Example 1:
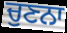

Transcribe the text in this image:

ਚੁਣਨਾ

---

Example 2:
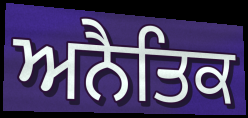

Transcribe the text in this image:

ਅਨੈਤਿਕ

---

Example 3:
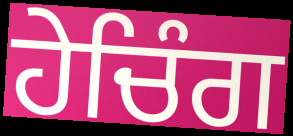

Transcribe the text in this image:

ਹੇਚਿੰਗ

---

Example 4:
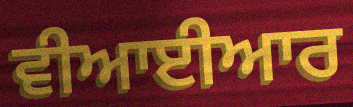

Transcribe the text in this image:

ਵੀਆਈਆਰ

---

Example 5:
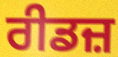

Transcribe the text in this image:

ਰੀਡਜ਼